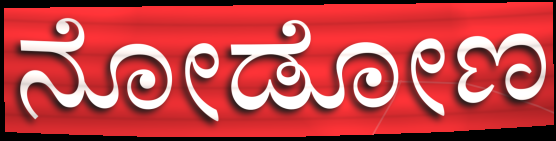
ನೋಡೋಣ